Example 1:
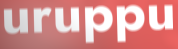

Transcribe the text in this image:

uruppu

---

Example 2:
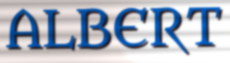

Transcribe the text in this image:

ALBERT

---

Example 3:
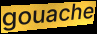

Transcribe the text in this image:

gouache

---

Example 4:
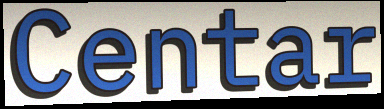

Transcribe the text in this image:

Centar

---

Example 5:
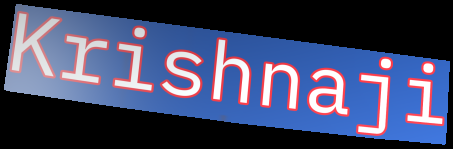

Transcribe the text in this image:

Krishnaji